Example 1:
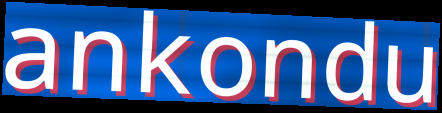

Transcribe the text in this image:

ankondu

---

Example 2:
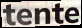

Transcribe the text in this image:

tente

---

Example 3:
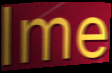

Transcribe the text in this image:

Ime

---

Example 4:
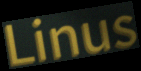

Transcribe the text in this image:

Linus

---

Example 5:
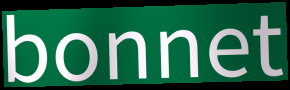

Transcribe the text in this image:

bonnet